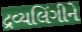
દ્રવ્યલિંગીને